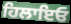
ਹਿਲਾਇਓ